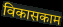
विकासकाम